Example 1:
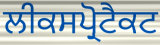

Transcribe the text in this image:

ਲੀਕਸਪ੍ਰੋਟੈਕਟ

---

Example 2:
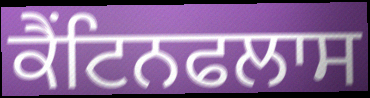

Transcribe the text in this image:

ਕੈਂਟਿਨਫਲਾਸ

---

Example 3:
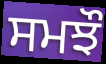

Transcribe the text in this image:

ਸਮਝੌ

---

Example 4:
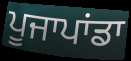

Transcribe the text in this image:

ਪੂਜਾਪਾਂਡਾ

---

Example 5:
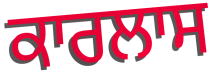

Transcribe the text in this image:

ਕਾਰਲਾਸ